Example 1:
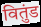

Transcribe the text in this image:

वितुंड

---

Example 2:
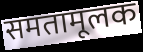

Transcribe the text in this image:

समतामूलक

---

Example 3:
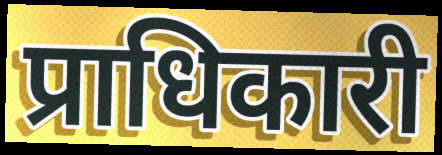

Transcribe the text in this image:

प्राधिकारी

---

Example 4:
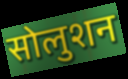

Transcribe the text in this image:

सोलुशन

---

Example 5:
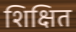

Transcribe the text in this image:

शिक्षित